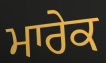
ਮਾਰੇਕ